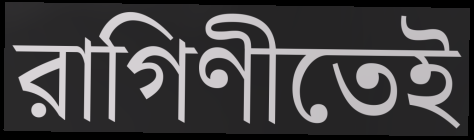
রাগিণীতেই